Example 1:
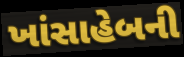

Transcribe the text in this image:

ખાંસાહેબની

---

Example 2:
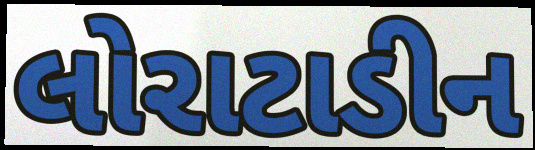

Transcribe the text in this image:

લોરાટાડીન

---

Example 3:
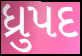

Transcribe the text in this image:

ધ્રુપદ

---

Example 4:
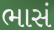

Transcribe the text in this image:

ભાસં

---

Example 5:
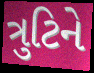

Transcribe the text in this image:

ત્રુટિને